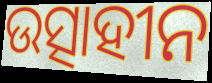
ଉତ୍ସାହୀନ